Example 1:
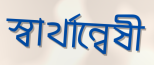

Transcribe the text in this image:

স্বার্থান্বেষী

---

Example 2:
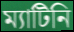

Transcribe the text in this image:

ম্যাটিনি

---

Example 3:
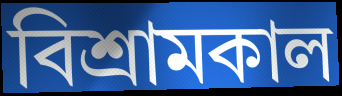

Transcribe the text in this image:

বিশ্রামকাল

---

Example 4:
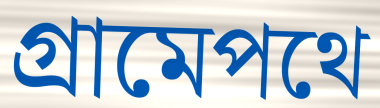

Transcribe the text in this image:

গ্রামেপথে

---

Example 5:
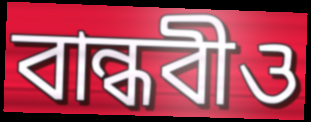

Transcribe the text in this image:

বান্ধবীও